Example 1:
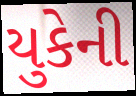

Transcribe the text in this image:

યુકેની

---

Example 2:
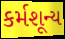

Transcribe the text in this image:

કર્મશૂન્ય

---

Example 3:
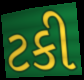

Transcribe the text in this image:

ટકી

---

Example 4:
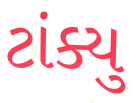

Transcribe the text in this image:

ટાંક્યુ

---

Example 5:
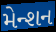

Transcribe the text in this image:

મેન્શન